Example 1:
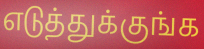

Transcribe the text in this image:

எடுத்துக்குங்க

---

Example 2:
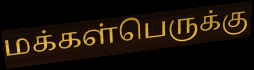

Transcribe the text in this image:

மக்கள்பெருக்கு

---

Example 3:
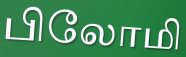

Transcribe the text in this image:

பிலோமி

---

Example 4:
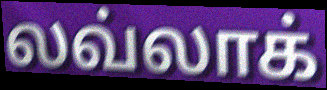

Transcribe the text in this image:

லவ்லாக்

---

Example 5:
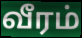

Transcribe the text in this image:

வீரம்